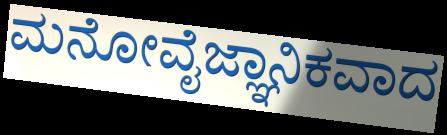
ಮನೋವೈಜ್ಞಾನಿಕವಾದ